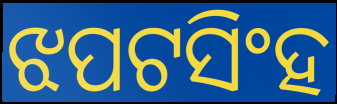
ଝପଟସିଂହ